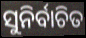
ସୁନିର୍ବାଚିତ